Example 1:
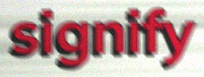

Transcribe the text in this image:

signify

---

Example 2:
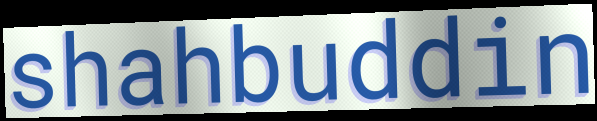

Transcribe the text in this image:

shahbuddin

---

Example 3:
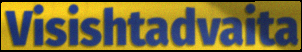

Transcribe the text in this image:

Visishtadvaita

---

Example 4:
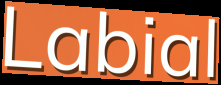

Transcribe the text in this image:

Labial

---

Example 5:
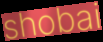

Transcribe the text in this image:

shobai